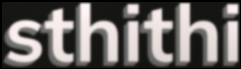
sthithi